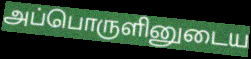
அப்பொருளினுடைய